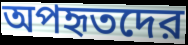
অপহৃতদের